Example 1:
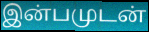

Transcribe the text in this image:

இன்பமுடன்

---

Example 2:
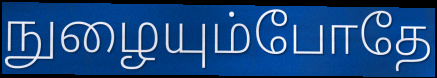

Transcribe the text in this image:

நுழையும்போதே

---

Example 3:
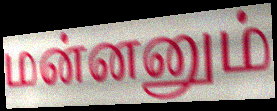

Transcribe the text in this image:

மன்னனும்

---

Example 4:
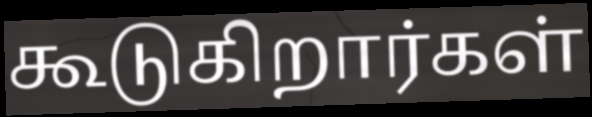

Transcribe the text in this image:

கூடுகிறார்கள்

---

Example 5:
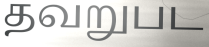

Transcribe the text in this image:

தவறுபட